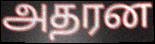
அதரன